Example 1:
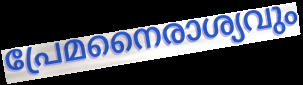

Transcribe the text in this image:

പ്രേമനൈരാശ്യവും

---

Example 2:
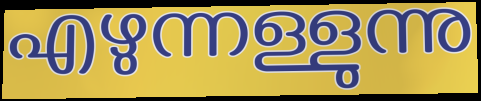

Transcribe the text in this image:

എഴുന്നള്ളുന്നു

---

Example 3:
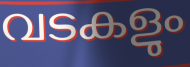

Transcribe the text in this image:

വടകളും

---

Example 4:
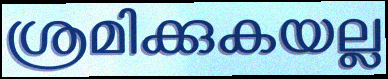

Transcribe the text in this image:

ശ്രമിക്കുകയല്ല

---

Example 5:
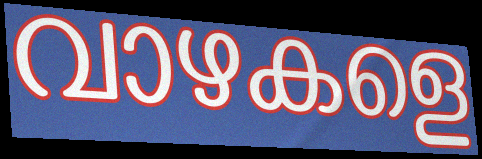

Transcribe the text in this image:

വാഴകളെ